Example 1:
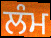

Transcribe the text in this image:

ਲੰਮ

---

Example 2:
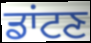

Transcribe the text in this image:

ਡਾਂਟਣ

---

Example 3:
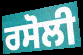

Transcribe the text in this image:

ਰਸੋਲੀ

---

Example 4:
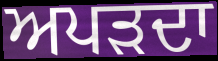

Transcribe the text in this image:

ਅਪੜਦਾ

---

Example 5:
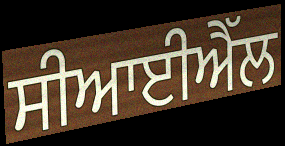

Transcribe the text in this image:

ਸੀਆਈਐੱਲ